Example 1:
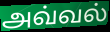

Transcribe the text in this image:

அவ்வல்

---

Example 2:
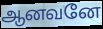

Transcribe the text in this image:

ஆனவனே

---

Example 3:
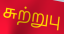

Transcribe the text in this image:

சுற்றுபு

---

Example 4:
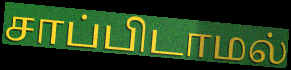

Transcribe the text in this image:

சாப்பிடாமல்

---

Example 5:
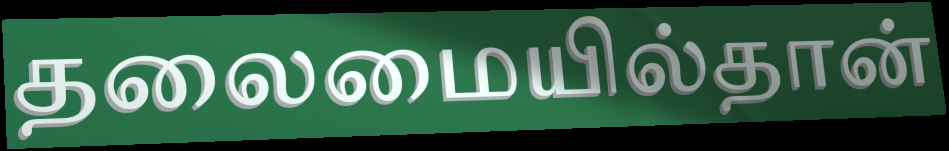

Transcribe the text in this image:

தலைமையில்தான்